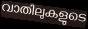
വാതിലുകളുടെ